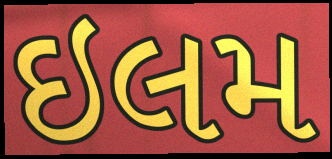
ઇલમ